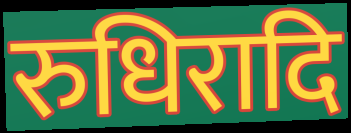
रुधिरादि